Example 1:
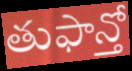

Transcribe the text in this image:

తుఫాన్తో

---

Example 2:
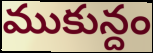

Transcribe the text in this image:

ముకున్దం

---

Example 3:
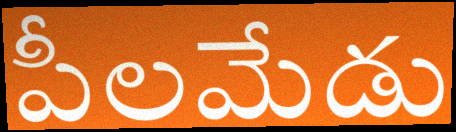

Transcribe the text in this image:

పీలమేడు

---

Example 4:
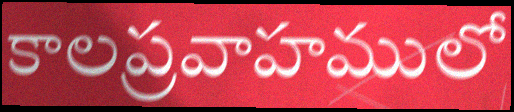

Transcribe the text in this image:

కాలప్రవాహములో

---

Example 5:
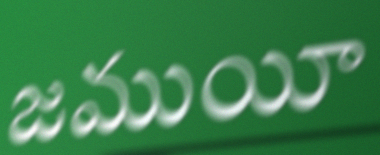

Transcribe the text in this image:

జముయీ